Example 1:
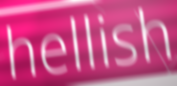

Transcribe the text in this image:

hellish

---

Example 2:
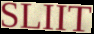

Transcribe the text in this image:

SLIIT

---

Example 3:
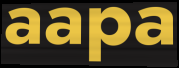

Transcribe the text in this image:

aapa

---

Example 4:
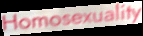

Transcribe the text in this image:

Homosexuality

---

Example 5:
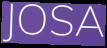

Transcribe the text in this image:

JOSA